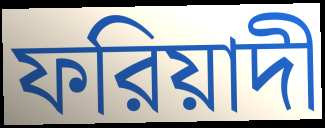
ফরিয়াদী